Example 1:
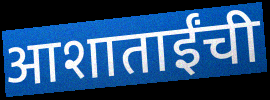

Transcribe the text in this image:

आशाताईंची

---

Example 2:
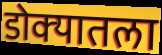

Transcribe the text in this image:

डोक्‍यातला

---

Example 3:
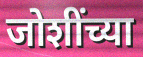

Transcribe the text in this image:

जोशींच्या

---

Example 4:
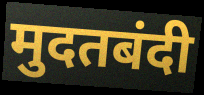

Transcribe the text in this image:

मुदतबंदी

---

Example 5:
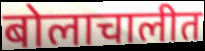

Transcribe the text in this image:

बोलाचालीत